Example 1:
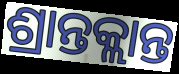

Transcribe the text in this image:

ଶ୍ରାନ୍ତକ୍ଲାନ୍ତ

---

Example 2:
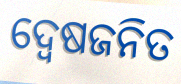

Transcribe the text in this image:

ଦ୍ଵେଷଜନିତ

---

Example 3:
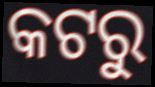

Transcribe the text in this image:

କଟରୁ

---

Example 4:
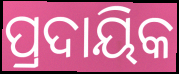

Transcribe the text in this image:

ପ୍ରଦାୟିକ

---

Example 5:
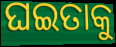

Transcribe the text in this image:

ଘଇତାକୁ